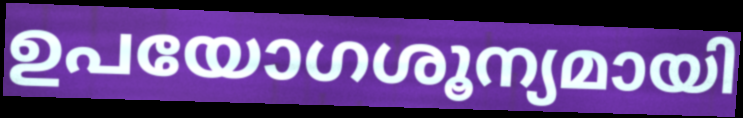
ഉപയോഗശൂന്യമായി